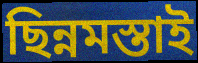
ছিন্নমস্তাই